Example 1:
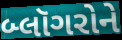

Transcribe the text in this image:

બ્લૉગરોને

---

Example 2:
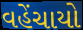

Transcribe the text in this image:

વહેંચાયો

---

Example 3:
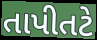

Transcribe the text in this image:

તાપીતટે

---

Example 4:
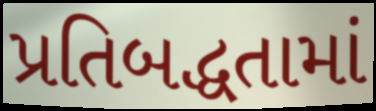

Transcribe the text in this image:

પ્રતિબદ્ધતામાં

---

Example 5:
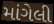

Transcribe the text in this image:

માંગેલી